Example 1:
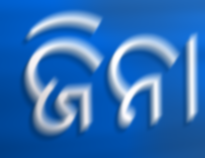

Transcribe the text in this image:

ଜିନା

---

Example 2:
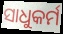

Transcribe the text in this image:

ସାଧୁକର୍ମ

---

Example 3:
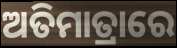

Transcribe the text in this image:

ଅତିମାତ୍ରାରେ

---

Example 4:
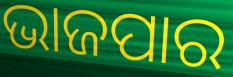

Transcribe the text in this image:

ଭାଜପାର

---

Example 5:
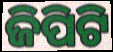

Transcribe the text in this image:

ଜିପିଟି